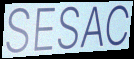
SESAC